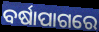
ବର୍ଷାପାଗରେ